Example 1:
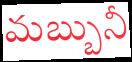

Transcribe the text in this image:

మబ్బునీ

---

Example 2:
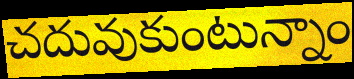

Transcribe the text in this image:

చదువుకుంటున్నాం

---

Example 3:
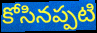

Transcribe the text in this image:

కోసినప్పటి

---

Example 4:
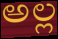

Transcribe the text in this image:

అల్ల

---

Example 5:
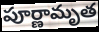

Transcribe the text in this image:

పూర్ణామృత